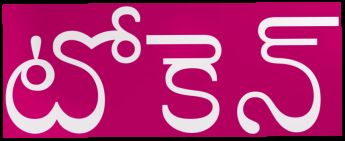
టోకెన్